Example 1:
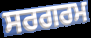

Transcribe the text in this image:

ਸਰਗਰਮ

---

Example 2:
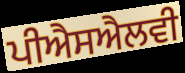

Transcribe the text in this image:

ਪੀਐਸਐਲਵੀ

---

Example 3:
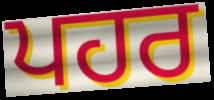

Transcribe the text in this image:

ਪਹਰ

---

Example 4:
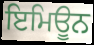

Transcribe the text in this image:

ਇਮਿਊਨ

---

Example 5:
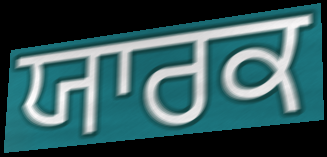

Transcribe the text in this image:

ਯਾਰਕ